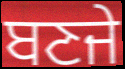
ਬਣਜੇ